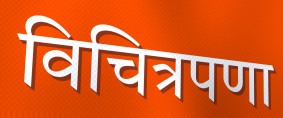
विचित्रपणा